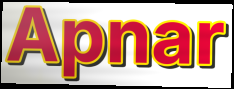
Apnar